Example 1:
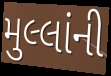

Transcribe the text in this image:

મુલ્લાંની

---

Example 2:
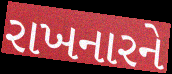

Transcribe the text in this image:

રાખનારને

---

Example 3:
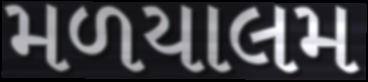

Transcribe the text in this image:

મળયાલમ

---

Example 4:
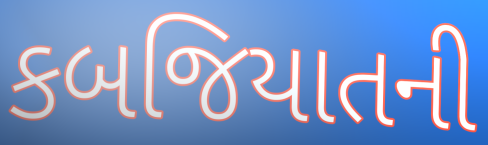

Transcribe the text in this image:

કબજિયાતની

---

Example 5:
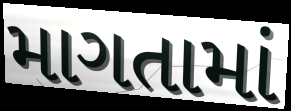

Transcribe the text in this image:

માગતામાં